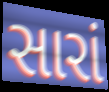
સારાં